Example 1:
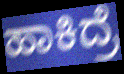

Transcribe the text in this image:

ಹಾಕಿದ್ರೆ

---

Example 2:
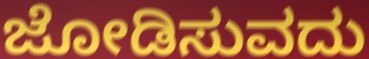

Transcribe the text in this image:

ಜೋಡಿಸುವದು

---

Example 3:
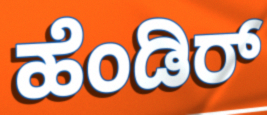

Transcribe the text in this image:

ಹೆಂಡಿರ್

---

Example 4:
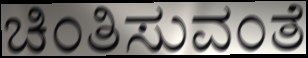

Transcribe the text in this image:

ಚಿಂತಿಸುವಂತೆ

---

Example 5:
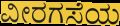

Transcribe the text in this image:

ವೀರಗಸೆಯ